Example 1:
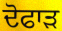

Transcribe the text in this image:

ਦੋਫਾੜ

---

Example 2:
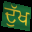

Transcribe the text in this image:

ਦੁੱਖ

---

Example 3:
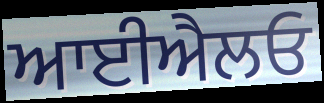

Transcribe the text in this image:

ਆਈਐਲਓ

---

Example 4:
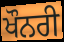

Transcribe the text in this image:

ਖੌਨਰੀ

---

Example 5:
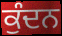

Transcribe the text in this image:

ਕੁੰਦਨ